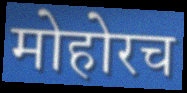
मोहोरच